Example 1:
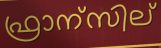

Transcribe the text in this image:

ഫ്രാന്സില്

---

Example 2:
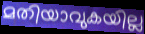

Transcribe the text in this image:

മതിയാവുകയില്ല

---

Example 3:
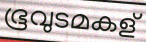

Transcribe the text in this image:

ഭൂവുടമകള്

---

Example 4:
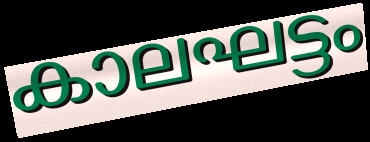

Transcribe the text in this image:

കാലഘട്ടം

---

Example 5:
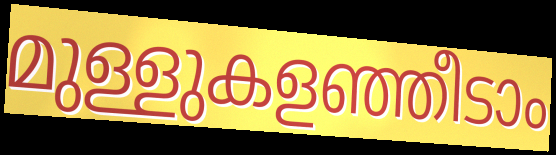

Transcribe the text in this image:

മുള്ളുകളഞ്ഞീടാം